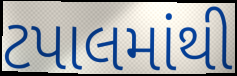
ટપાલમાંથી